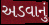
અડવાનું